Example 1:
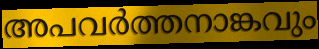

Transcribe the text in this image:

അപവർത്തനാങ്കവും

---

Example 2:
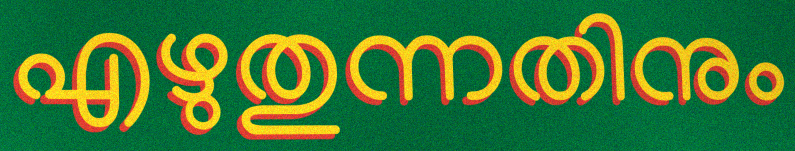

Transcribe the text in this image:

എഴുതുന്നതിനും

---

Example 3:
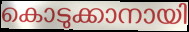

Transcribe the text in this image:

കൊടുക്കാനായി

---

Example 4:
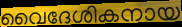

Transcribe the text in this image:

വൈദേശികനായ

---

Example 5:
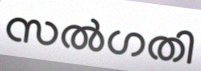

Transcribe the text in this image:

സൽഗതി